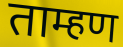
ताम्हण